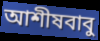
আশীষবাবু